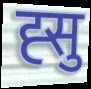
ह्सु